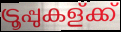
ട്രൂപ്പുകള്ക്ക്